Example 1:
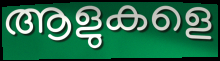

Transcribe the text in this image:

ആളുകളെ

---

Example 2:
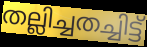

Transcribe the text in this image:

തല്ലിച്ചതച്ചിട്ട്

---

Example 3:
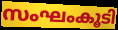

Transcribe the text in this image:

സംഘംകൂടി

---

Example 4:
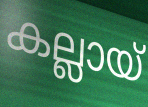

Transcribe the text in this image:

കല്ലായ്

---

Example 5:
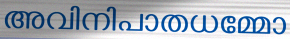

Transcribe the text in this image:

അവിനിപാതധമ്മോ